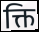
क्ति